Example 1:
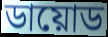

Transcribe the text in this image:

ডায়োড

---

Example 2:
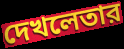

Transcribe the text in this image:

দেখলেতার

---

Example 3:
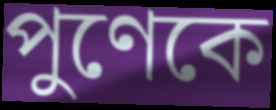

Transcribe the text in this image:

পুণেকে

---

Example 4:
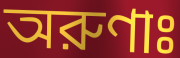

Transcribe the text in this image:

অরুণাঃ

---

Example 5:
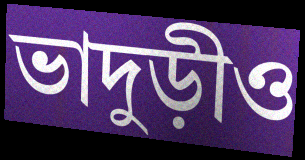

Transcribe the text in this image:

ভাদুড়ীও